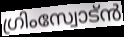
ഗ്രിംസ്വോട്ൻ